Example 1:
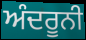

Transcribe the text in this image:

ਅੰਦਰੂਨੀ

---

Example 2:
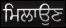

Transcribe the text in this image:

ਮਿਲਾਉਣ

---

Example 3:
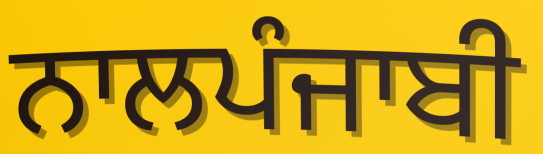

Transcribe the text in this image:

ਨਾਲਪੰਜਾਬੀ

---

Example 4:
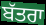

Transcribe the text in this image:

ਬੱਤਰਾ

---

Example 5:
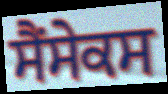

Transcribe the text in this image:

ਸੈਂਸੇਕਸ